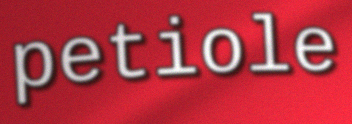
petiole